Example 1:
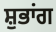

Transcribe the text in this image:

ਸ਼ੁਭਾਂਗ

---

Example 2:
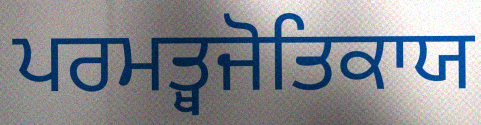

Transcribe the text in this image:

ਪਰਮਤ੍ਥਜੋਤਿਕਾਯ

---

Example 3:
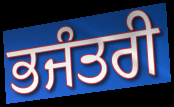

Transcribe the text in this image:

ਭਜੰਤਰੀ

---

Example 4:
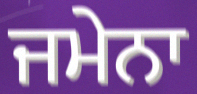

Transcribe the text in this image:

ਜਮੇਨਾ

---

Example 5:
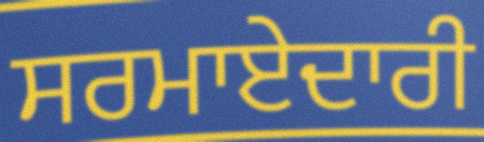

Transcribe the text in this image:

ਸਰਮਾਏਦਾਰੀ